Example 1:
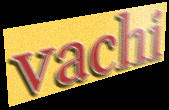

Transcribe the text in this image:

vachi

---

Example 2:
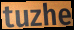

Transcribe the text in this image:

tuzhe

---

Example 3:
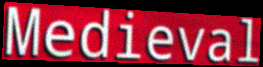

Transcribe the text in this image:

Medieval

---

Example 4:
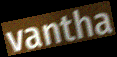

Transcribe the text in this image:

vantha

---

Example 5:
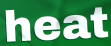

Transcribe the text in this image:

heat